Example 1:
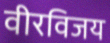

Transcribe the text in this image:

वीरविजय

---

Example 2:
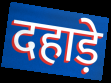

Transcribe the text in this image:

दहाड़े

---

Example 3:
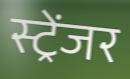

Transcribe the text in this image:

स्ट्रेंजर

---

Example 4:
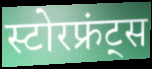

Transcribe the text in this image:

स्टोरफ्रंट्स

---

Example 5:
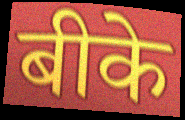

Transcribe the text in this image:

बीके